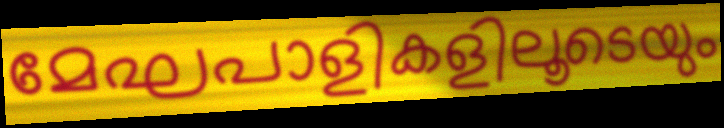
മേഘപാളികളിലൂടെയും